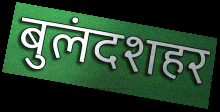
बुलंदशहर